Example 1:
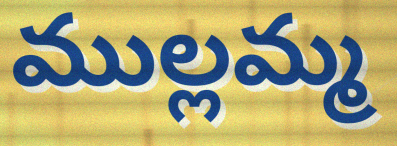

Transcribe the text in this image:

ముల్లమ్మ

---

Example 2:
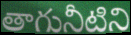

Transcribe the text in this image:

తాగునీటిని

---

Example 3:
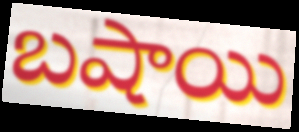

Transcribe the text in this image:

బషాయి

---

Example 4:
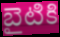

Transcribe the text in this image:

బైటికి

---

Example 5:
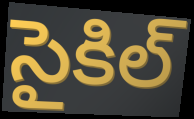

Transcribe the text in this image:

సైకిల్